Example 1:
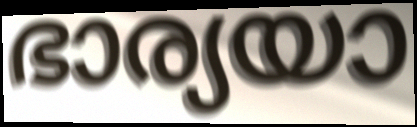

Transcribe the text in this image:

ഭാര്യയാ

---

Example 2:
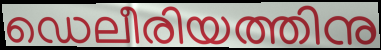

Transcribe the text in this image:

ഡെലീരിയത്തിനു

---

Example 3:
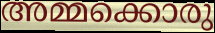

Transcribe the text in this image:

അമ്മക്കൊരു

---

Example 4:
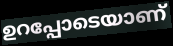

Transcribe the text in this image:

ഉറപ്പോടെയാണ്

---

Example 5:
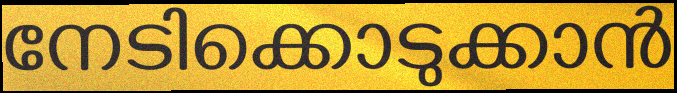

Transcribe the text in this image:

നേടിക്കൊടുക്കാൻ